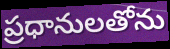
ప్రధానులతోను